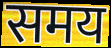
समय